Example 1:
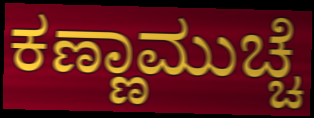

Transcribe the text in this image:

ಕಣ್ಣಾಮುಚ್ಚೆ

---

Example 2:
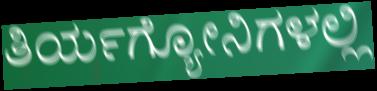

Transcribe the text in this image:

ತಿರ್ಯಗ್ಯೋನಿಗಳಲ್ಲಿ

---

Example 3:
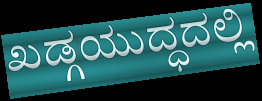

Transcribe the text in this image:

ಖಡ್ಗಯುದ್ಧದಲ್ಲಿ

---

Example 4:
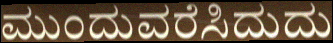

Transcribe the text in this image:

ಮುಂದುವರೆಸಿದುದು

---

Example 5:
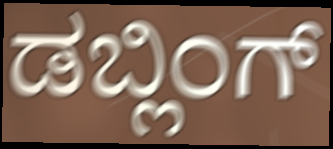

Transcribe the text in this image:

ಡಬ್ಲಿಂಗ್